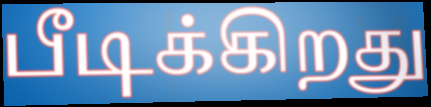
பீடிக்கிறது